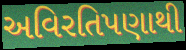
અવિરતિપણાથી